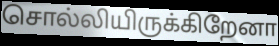
சொல்லியிருக்கிறேனா